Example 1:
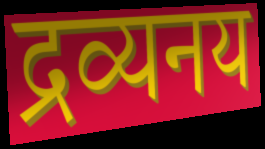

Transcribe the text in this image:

द्रव्यनय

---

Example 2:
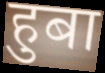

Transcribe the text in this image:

हुबा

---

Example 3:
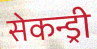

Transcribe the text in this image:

सेकन्ड्री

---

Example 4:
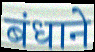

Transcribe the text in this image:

बंधाने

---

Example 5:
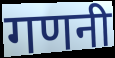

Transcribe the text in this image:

गणनी